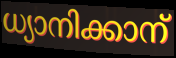
ധ്യാനിക്കാന്